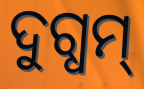
ଦୁଗ୍ଧମ୍